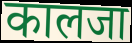
कालजा